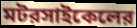
মটরসাইকেলের